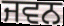
ਜਵਨ